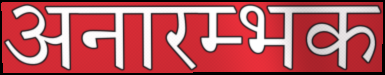
अनारम्भक